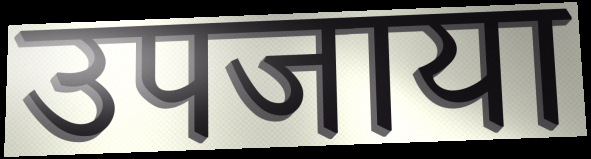
उपजाया